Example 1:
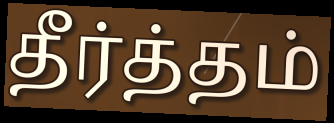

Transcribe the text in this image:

தீர்த்தம்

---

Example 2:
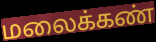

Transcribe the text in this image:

மலைக்கண்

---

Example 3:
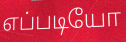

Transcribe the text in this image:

எப்படியோ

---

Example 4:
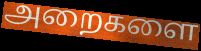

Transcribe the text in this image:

அறைகளை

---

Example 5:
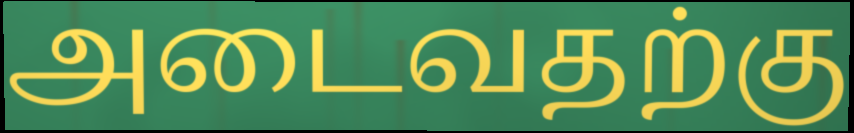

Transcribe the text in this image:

அடைவதற்கு